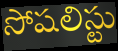
సోషలిస్టు